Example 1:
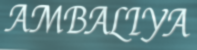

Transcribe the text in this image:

AMBALIYA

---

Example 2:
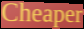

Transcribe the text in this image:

Cheaper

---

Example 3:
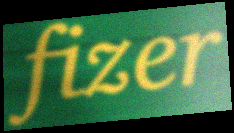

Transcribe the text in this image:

fizer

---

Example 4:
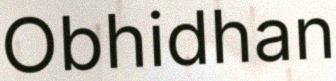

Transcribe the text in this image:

Obhidhan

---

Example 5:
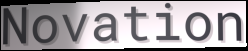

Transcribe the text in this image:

Novation